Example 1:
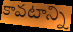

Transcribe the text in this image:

కావటాన్ని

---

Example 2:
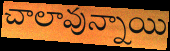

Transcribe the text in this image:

చాలావున్నాయి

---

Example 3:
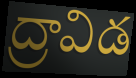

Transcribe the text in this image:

ద్రావిడ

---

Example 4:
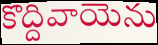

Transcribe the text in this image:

కొద్దివాయెను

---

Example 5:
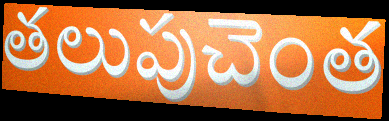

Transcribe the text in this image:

తలుపుచెంత